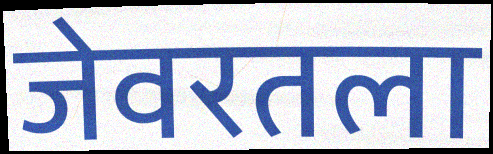
जेवरतला